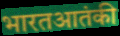
भारतआतंकी